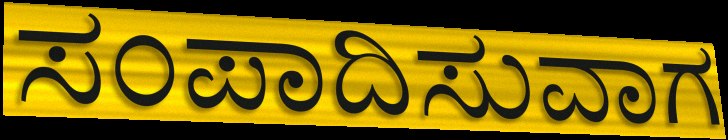
ಸಂಪಾದಿಸುವಾಗ